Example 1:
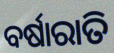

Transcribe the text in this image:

ବର୍ଷାରାତି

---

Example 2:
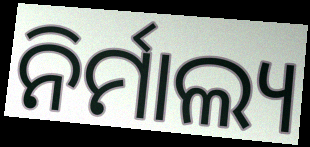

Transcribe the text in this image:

ନିର୍ମାଲ୍ୟ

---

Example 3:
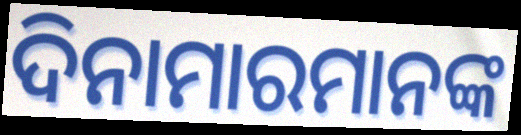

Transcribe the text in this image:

ଦିନାମାରମାନଙ୍କ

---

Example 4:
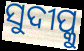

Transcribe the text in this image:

ସୁଦୀପ୍କୁ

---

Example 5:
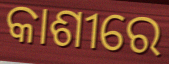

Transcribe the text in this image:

କାଶୀରେ